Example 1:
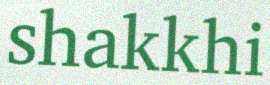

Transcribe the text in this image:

shakkhi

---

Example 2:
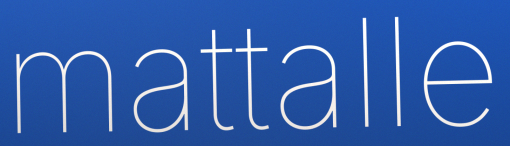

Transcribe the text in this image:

mattalle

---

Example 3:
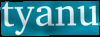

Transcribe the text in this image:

tyanu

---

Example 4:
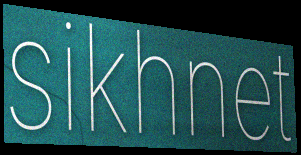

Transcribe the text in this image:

sikhnet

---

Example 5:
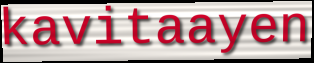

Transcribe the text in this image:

kavitaayen